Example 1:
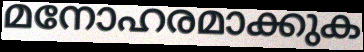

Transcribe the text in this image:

മനോഹരമാക്കുക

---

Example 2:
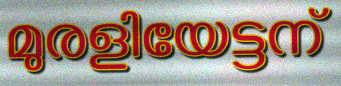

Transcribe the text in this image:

മുരളിയേട്ടന്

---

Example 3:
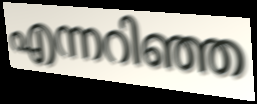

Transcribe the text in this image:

എന്നറിഞ്ഞ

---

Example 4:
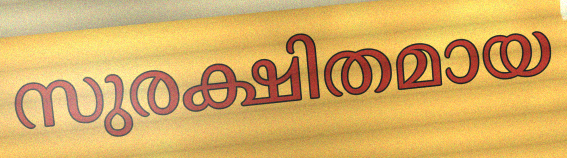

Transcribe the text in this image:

സുരക്ഷിതമായ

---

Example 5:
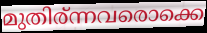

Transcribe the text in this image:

മുതിര്ന്നവരൊക്കെ